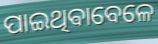
ପାଇଥିଵାବେଳେ